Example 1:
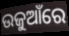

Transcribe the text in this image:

ଉଜୁଆଁରେ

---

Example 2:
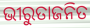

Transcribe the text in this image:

ଭୀରୁତାଜନିତ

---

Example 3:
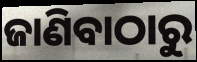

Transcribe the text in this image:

ଜାଣିବାଠାରୁ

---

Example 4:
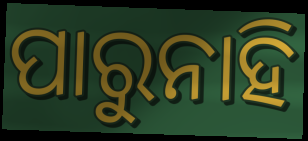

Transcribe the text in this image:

ପାରୁନାହି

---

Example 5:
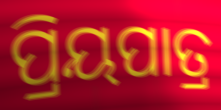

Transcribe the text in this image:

ପ୍ରିୟପାତ୍ର